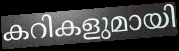
കറികളുമായി